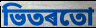
ভিতৰতো